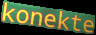
konekte